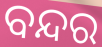
ବନ୍ଦର